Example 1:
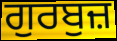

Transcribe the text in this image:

ਗੁਰਬੁਜ਼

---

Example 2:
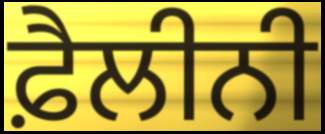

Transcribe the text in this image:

ਫ਼ੈਲੀਨੀ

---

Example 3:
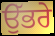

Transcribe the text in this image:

ਉੱਭਰੇ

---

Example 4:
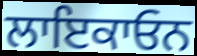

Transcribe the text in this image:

ਲਾਇਕਾਓਨ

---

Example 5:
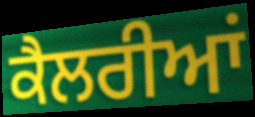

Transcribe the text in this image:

ਕੈਲਰੀਆਂ